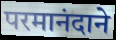
परमानंदाने